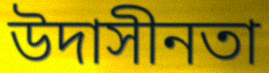
উদাসীনতা